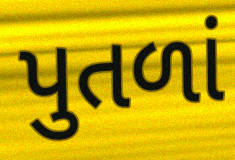
પુતળાં